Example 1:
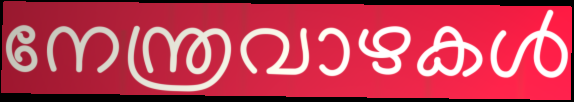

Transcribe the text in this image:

നേന്ത്രവാഴകൾ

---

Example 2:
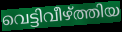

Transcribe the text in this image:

വെട്ടിവീഴ്ത്തിയ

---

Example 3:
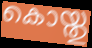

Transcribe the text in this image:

കൊയ്തു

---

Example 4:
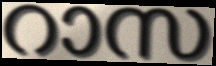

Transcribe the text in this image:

റാസ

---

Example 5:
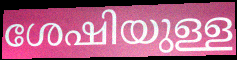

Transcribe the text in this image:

ശേഷിയുള്ള